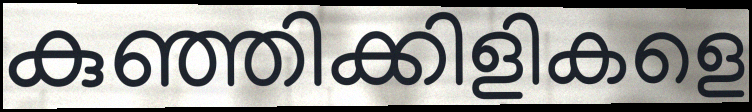
കുഞ്ഞിക്കിളികളെ